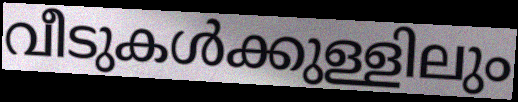
വീടുകൾക്കുള്ളിലും